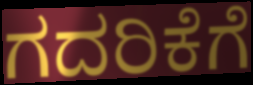
ಗದರಿಕೆಗೆ